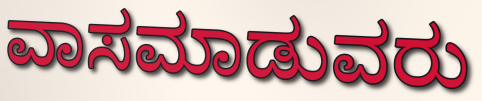
ವಾಸಮಾಡುವರು